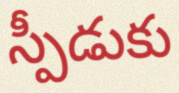
స్పీడుకు